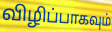
விழிப்பாகவும்